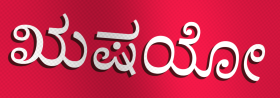
ಋಷಯೋ